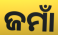
ଜମାଁ